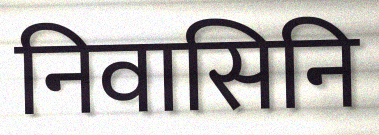
निवासिनि